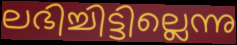
ലഭിച്ചിട്ടില്ലെന്നു